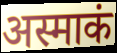
अस्माकं